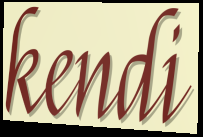
kendi